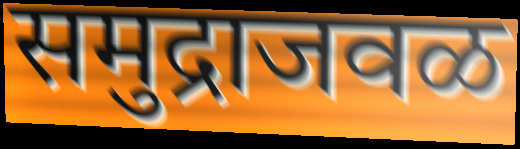
समुद्राजवळ